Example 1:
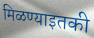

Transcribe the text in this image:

मिळण्याइतकी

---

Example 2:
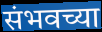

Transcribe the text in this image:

संभवच्या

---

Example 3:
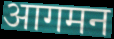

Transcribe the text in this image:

आगमन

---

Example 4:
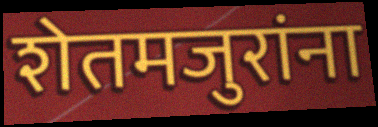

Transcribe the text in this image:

शेतमजुरांना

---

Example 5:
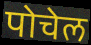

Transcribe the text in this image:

पोचेल